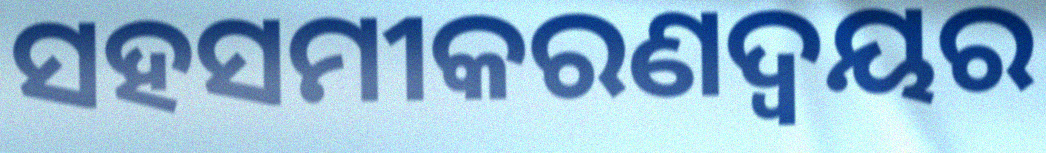
ସହସମୀକରଣଦ୍ୱୟର